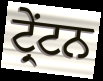
ਟ੍ਰੇਂਟਨ